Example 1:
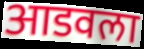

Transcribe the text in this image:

आडवला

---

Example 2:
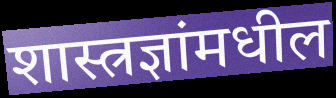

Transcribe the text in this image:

शास्त्रज्ञांमधील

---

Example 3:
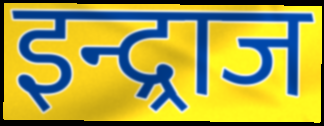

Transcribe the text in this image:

इन्द्र्राज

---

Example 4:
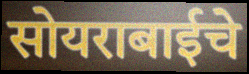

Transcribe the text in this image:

सोयराबाईचे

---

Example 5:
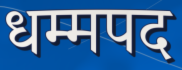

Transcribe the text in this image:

धम्मपद